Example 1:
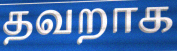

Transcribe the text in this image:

தவறாக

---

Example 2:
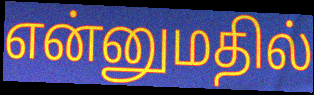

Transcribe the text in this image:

என்னுமதில்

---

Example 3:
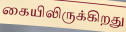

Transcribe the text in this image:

கையிலிருக்கிறது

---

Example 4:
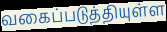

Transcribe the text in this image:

வகைப்படுத்தியுள்ள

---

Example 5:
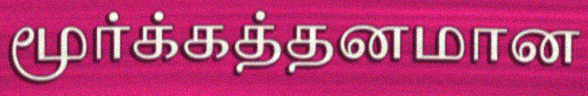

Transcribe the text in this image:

மூர்க்கத்தனமான